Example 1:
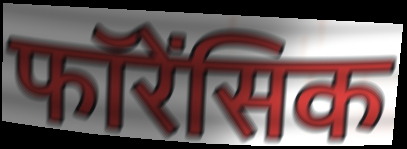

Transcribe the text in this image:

फॉरेंसिक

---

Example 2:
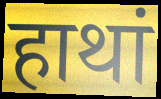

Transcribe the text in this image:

हाथां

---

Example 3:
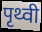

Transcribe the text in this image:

पृथ्‍वी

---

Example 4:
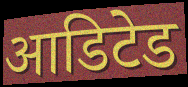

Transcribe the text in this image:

आडिटेड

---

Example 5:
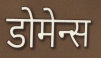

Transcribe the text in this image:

डोमेन्स